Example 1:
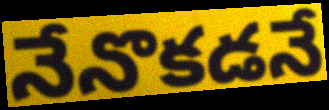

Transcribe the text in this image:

నేనొకడనే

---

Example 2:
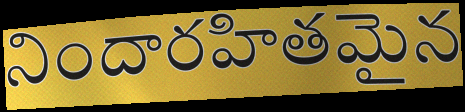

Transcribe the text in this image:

నిందారహితమైన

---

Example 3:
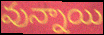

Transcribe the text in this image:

వున్నాయి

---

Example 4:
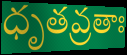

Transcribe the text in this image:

ధృతవ్రతాః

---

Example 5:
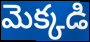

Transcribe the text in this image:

మెక్కడి